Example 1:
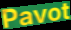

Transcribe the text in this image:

Pavot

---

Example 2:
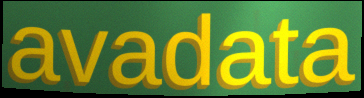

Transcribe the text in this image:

avadata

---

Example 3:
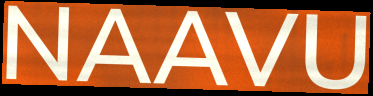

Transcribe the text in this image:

NAAVU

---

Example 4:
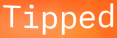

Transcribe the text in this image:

Tipped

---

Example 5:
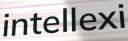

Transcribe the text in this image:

intellexi